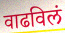
वाढविलं